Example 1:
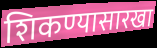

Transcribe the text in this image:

शिकण्यासारखा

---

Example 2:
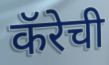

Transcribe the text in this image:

कॅरेची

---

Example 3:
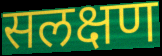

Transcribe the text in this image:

सलक्षण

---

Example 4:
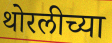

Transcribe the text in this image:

थोरलीच्या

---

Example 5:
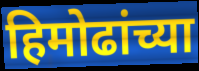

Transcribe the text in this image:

हिमोढांच्या